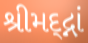
શ્રીમદ્દ્નાં